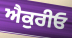
ਐਕੁਰੀਓ